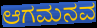
ಆಗಮನವ